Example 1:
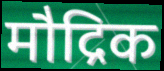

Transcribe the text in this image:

मौद्रिक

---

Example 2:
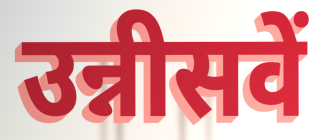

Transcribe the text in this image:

उन्नीसवें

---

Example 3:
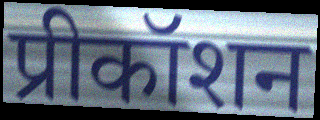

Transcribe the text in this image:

प्रीकॉशन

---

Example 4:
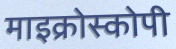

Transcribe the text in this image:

माइक्रोस्कोपी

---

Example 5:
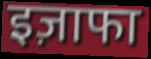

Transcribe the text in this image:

इज़ाफा